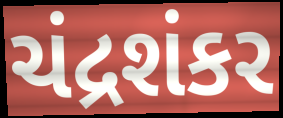
ચંદ્રશંકર